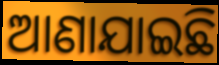
ଆଣାଯାଇଛି